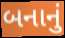
બનાનું